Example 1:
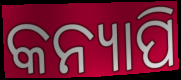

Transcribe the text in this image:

କନ୍ୟାପି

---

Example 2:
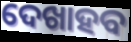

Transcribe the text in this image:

ଦେଖାହବ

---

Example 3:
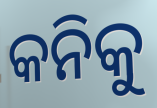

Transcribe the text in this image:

କନିକୁ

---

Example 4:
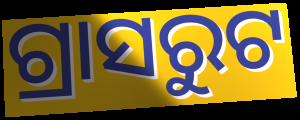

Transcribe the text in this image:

ଗ୍ରାସରୁଟ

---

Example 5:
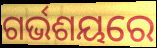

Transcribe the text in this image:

ଗର୍ଭଶୟରେ